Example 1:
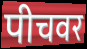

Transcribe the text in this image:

पीचवर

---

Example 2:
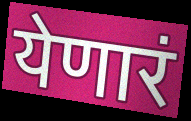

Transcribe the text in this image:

येणारं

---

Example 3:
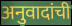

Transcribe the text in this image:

अनुवादांची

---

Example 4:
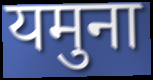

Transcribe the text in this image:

यमुना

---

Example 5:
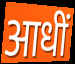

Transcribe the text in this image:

आधीं